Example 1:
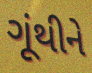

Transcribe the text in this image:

ગૂંથીને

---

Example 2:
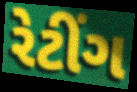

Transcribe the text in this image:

રેટીંગ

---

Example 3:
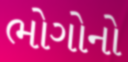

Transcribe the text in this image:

ભોગોનો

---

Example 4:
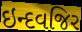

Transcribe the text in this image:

ઇન્દવજિર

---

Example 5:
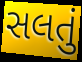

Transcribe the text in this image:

સલતું